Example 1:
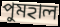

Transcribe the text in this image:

পুমহাল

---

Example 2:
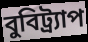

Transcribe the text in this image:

বুবিট্র্যাপ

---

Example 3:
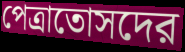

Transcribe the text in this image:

পেত্রাতোসদের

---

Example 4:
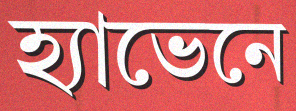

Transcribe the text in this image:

হ্যাভেনে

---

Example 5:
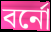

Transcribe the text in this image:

বর্নো